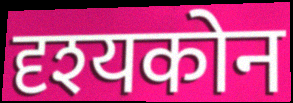
दृश्‍यकोन